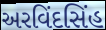
અરવિંદસિંહ